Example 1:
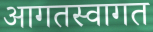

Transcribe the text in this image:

आगतस्वागत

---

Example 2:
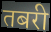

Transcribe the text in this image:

तबरी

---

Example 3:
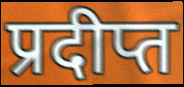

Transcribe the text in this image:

प्रदीप्त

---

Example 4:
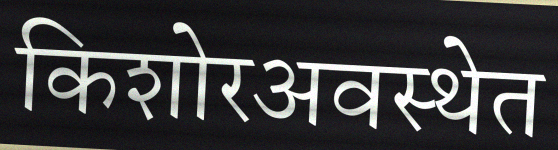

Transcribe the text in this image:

किशोरअवस्थेत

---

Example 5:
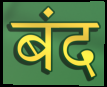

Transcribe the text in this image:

बंद